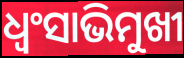
ଧ୍ଵଂସାଭିମୁଖୀ